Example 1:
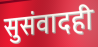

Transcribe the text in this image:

सुसंवादही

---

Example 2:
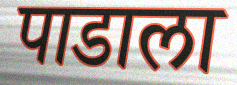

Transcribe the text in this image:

पाडाला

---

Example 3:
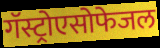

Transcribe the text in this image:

गॅस्ट्रोएसोफेजल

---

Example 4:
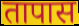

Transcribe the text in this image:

तापास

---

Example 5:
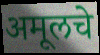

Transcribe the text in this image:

अमूलचे